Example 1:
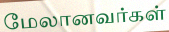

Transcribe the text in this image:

மேலானவர்கள்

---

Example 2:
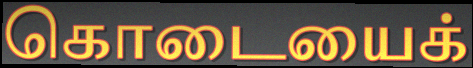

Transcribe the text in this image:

கொடையைக்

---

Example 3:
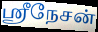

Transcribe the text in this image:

ஸ்ரீநேசன்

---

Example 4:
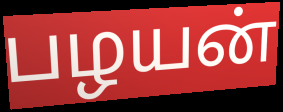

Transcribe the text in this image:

பழயன்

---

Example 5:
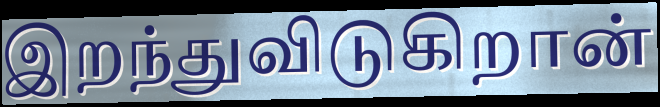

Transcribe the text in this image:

இறந்துவிடுகிறான்